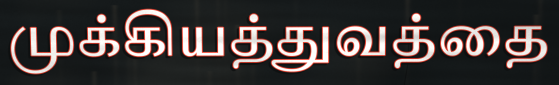
முக்கியத்துவத்தை